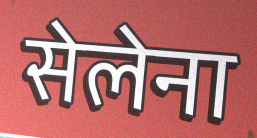
सेलेना